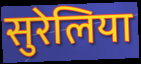
सुरेलिया